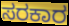
ಸರಕಾರ